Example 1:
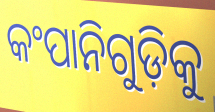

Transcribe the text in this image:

କଂପାନିଗୁଡ଼ିକୁ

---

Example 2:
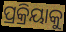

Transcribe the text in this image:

ପ୍ରକ୍ରିୟାକୁ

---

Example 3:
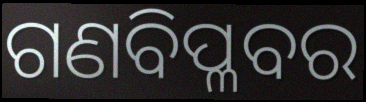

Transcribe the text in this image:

ଗଣବିପ୍ଳବର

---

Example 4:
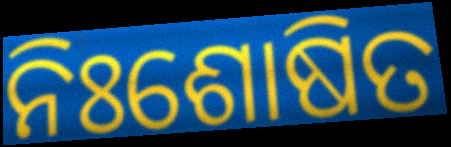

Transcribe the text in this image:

ନିଃଶୋଷିତ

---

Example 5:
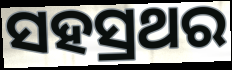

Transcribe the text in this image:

ସହସ୍ରଥର